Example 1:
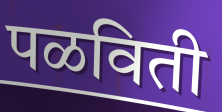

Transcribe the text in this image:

पळविती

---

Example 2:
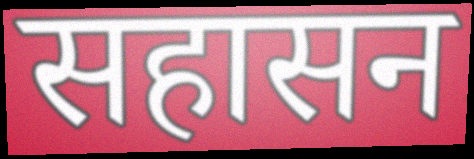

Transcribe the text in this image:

सहासन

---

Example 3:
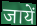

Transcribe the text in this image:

जायें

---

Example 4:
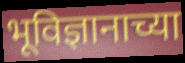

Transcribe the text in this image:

भूविज्ञानाच्या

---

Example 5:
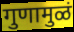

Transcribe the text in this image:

गुणामुळं